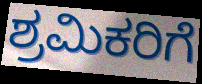
ಶ್ರಮಿಕರಿಗೆ